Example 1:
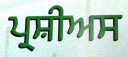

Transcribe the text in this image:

ਪ੍ਰਸ਼ੀਅਸ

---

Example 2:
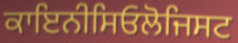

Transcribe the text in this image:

ਕਾਇਨੀਸਿਓਲੋਜਿਸਟ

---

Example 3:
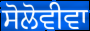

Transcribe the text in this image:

ਸੋਲੋਵੀਵਾ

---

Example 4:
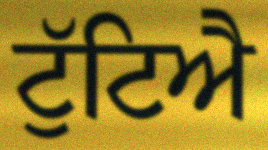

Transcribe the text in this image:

ਟੁੱਟਿਐ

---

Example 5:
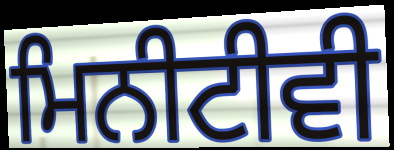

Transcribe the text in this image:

ਮਿਨੀਟੀਵੀ